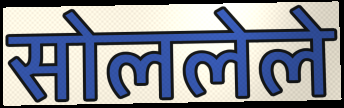
सोललेले